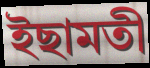
ইছামতী